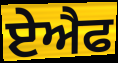
ਏਐਫ